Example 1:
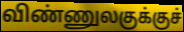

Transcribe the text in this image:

விண்ணுலகுக்குச்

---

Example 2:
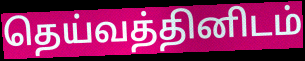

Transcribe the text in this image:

தெய்வத்தினிடம்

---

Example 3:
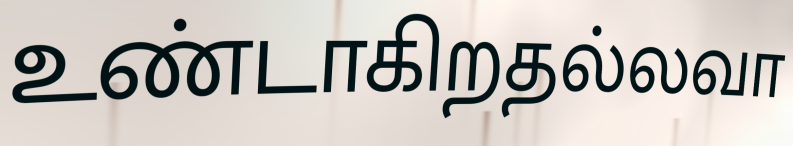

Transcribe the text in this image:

உண்டாகிறதல்லவா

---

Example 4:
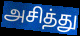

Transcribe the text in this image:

அசித்து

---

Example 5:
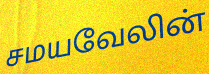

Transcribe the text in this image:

சமயவேலின்